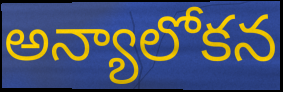
అన్యాలోకన